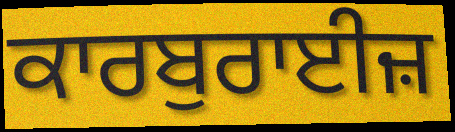
ਕਾਰਬੁਰਾਈਜ਼